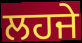
ਲਹਜੇ